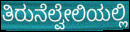
ತಿರುನೆಲ್ವೇಲಿಯಲ್ಲಿ